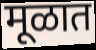
मूळात